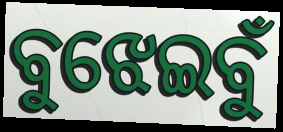
ବୁଝେଇବୁଁ